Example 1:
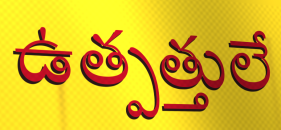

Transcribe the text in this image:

ఉత్పత్తులే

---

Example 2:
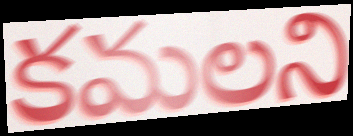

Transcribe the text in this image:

కమలని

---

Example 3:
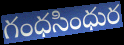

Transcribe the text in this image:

గంధసింధుర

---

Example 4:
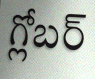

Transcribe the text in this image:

గ్లోబర్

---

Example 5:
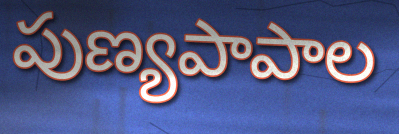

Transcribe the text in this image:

పుణ్యపాపాల